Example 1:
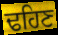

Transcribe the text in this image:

ਢਹਿਣ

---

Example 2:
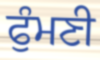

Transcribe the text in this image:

ਫੁੰਮਣੀ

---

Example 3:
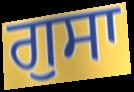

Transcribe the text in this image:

ਗੁਸਾ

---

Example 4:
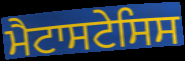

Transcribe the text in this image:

ਮੈਟਾਸਟੇਸਿਸ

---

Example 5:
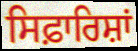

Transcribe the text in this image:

ਸਿਫ਼ਾਰਿਸ਼ਾਂ